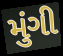
મુંગી